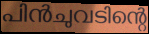
പിൻചുവടിന്റെ